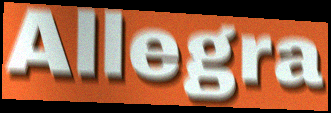
Allegra